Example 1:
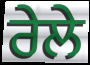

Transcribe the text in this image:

ਰੇਲੇ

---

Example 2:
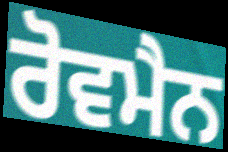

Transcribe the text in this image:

ਰੋਵਮੈਨ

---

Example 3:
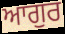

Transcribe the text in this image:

ਆਗੁਰ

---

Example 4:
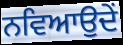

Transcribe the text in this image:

ਨਵਿਆਉਦੇਂ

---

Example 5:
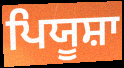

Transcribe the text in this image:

ਪਿਯੂਸ਼ਾ